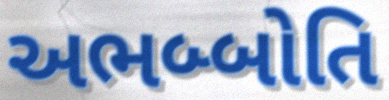
અભબ્બોતિ